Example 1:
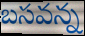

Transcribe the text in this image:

బసవన్న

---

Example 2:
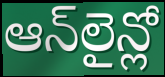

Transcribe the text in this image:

ఆన్‌లైన్లో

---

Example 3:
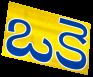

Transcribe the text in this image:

ఒకె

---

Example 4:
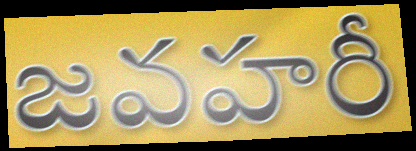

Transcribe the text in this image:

జవహరీ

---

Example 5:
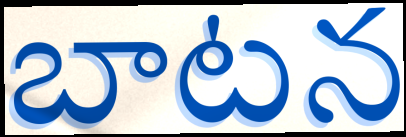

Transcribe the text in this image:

బాటన